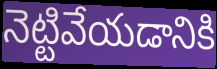
నెట్టివేయడానికి